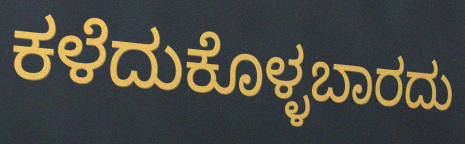
ಕಳೆದುಕೊಳ್ಳಬಾರದು